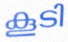
കൂടി